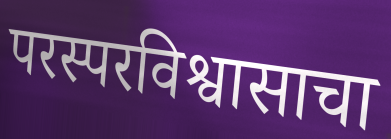
परस्परविश्वासाचा